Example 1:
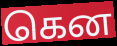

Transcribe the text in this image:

கென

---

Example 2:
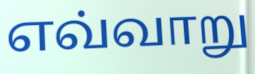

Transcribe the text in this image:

எவ்வாறு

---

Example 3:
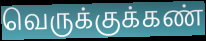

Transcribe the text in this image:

வெருக்குக்கண்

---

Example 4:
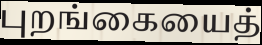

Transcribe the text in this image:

புறங்கையைத்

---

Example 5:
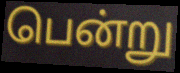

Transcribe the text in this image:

பென்று